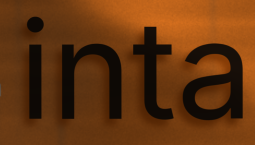
inta